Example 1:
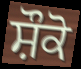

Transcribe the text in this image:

ਸ਼ੌਕੋ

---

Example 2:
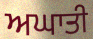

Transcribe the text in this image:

ਅਘਾਤੀ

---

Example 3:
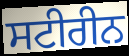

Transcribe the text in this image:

ਸਟੀਰੀਨ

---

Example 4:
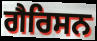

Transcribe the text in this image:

ਗੈਰਿਸਨ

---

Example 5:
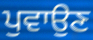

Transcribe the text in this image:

ਪੁਵਾਉਣ